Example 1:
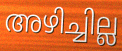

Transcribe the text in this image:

അഴിച്ചില്ല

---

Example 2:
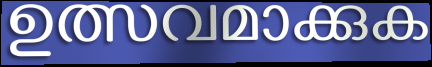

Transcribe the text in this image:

ഉത്സവമാക്കുക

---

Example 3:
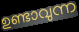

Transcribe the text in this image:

ഉണ്ടാവുന്ന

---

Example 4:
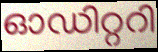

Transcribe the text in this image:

ഓഡിറ്ററി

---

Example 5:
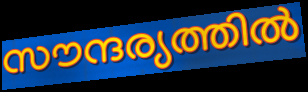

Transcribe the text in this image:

സൗന്ദര്യത്തിൽ